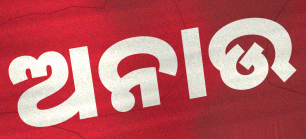
ଅନାଉ